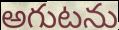
అగుటను